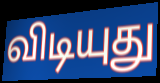
விடியுது